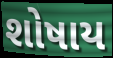
શોષાય